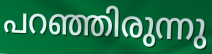
പറഞ്ഞിരുന്നു